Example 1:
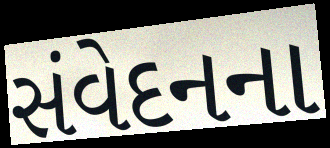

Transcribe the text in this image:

સંવેદનના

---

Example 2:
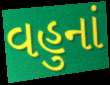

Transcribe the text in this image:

વહુનાં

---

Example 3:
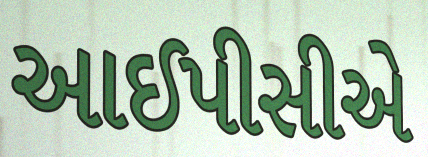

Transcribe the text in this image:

આઈપીસીએ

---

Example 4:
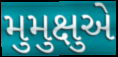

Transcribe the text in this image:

મુમુક્ષુએ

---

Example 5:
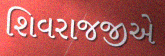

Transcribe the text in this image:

શિવરાજજીએ